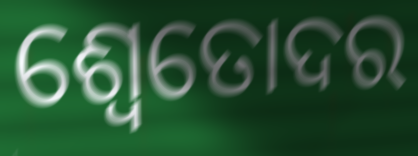
ଶ୍ୱେତୋଦର